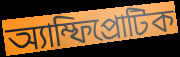
অ্যাম্ফিপ্রোটিক